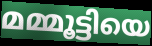
മമ്മൂട്ടിയെ